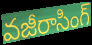
వజీరాసింగ్